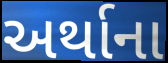
અર્થાના